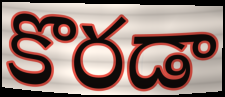
కొరడా